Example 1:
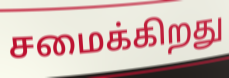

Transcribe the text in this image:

சமைக்கிறது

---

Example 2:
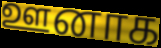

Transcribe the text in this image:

ஊனாக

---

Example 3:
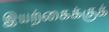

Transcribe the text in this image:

இயற்கைக்குக்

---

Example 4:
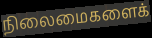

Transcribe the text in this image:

நிலைமைகளைக்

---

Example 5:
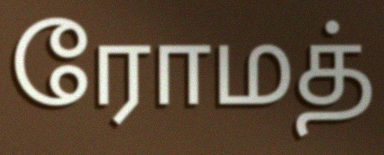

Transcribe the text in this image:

ரோமத்